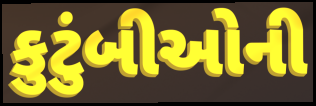
કુટુંબીઓની